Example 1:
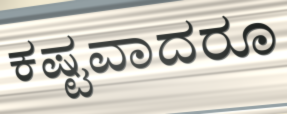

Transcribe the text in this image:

ಕಷ್ಟವಾದರೂ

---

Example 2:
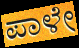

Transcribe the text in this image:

ಪಾಳೇ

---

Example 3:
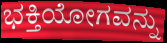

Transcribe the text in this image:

ಭಕ್ತಿಯೋಗವನ್ನು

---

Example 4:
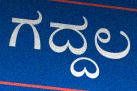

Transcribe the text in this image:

ಗದ್ದಲ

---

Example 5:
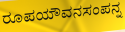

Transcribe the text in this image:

ರೂಪಯೌವನಸಂಪನ್ನ